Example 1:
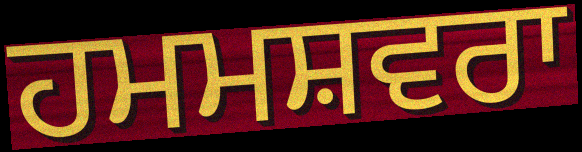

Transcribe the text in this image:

ਹਮਮਸ਼ਵਰਾ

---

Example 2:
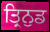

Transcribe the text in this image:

ਤ੍ਰਿਨੁਡ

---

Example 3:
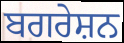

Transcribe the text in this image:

ਬਗਰੇਸ਼ਨ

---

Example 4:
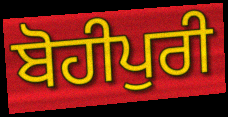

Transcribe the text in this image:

ਬੋਹੀਪੁਰੀ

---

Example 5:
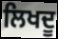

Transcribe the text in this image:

ਲਿਖਦੂ